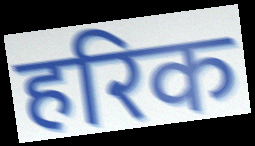
हरिक